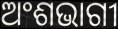
ଅଂଶଭାଗୀ